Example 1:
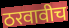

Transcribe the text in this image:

ठरवावीच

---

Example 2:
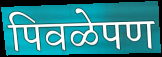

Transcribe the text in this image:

पिवळेपण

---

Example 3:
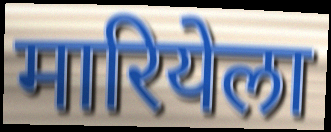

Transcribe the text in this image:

मारियेला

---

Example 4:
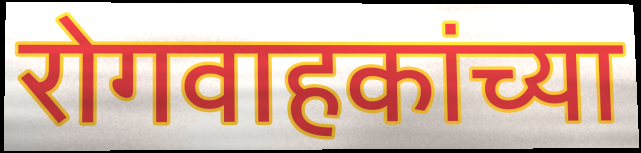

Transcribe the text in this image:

रोगवाहकांच्या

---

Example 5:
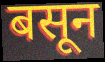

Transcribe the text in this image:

बसून